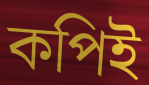
কপিই